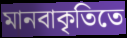
মানবাকৃতিতে